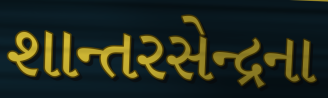
શાન્તરસેન્દ્રના